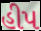
હીપ